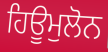
ਹਿਊਮੁਲੋਨ